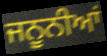
ਜਨੂਨੀਆਂ